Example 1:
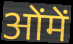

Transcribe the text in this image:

ओंमें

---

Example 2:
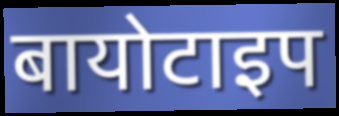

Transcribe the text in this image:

बायोटाइप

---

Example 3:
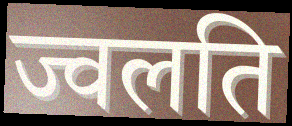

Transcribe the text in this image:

ज्वलति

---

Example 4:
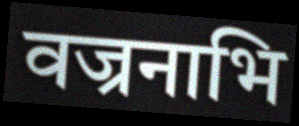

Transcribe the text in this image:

वज्रनाभि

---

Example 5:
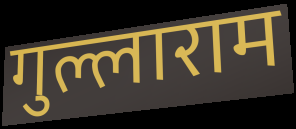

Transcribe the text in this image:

गुल्लाराम